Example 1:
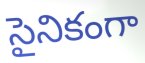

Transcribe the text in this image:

సైనికంగా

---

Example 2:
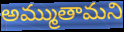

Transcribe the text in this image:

అమ్ముతామని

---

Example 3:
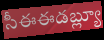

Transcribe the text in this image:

సీఈఈడబ్ల్యూ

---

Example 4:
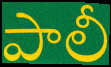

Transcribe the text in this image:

పాలీ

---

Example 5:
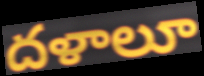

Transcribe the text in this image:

దళాలూ